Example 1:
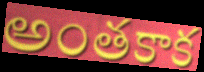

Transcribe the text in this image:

అంతకాక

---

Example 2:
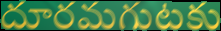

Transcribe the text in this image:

దూరమగుటకు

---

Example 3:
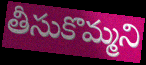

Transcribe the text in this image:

తీసుకొమ్మని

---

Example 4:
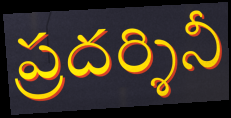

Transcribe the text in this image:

ప్రదర్శినీ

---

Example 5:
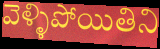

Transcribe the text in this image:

వెళ్ళిపోయితిని